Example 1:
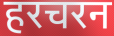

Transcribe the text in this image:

हरचरन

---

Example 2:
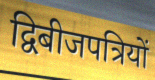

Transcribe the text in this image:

द्विबीजपत्रियों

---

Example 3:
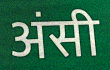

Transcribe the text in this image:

अंसी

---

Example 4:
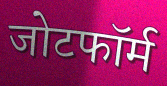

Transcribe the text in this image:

जोटफॉर्म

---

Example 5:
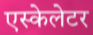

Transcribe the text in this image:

एस्केलेटर